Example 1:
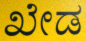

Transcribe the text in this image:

ಖೇಡ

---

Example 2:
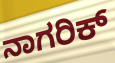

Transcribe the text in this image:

ನಾಗರಿಕ್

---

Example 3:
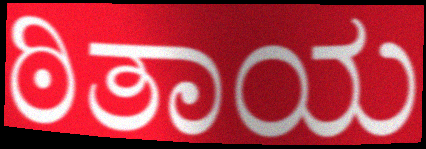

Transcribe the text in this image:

ಠಿತಾಯ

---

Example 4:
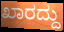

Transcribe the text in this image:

ಖಾರದ್ದು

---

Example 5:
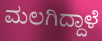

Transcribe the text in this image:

ಮಲಗಿದ್ದಾಳೆ